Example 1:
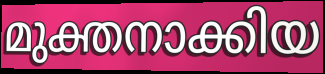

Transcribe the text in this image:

മുക്തനാക്കിയ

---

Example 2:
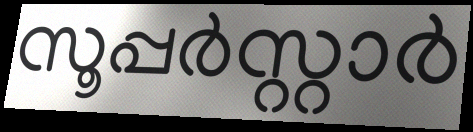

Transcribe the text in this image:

സൂപ്പർസ്റ്റാർ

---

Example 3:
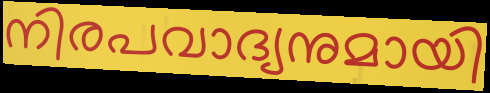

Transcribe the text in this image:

നിരപവാദ്യനുമായി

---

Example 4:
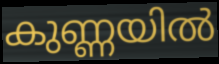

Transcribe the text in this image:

കുണ്ണയിൽ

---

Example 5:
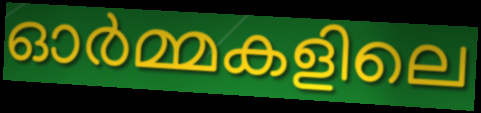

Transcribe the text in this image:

ഓർമ്മകളിലെ